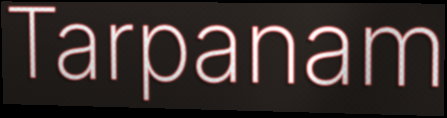
Tarpanam